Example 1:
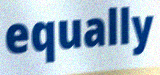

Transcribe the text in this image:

equally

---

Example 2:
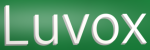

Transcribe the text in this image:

Luvox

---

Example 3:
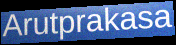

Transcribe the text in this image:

Arutprakasa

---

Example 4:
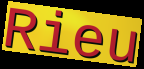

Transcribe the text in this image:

Rieu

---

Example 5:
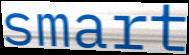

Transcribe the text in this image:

smart